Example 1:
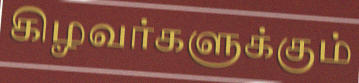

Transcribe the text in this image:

கிழவர்களுக்கும்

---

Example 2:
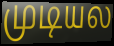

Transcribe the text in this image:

முடியல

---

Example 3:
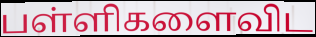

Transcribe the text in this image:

பள்ளிகளைவிட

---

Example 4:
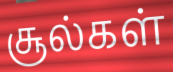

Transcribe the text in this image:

சூல்கள்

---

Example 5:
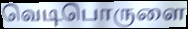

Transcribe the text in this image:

வெடிபொருளை